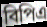
বিপিএ